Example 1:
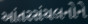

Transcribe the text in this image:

આંતરસંચલનોને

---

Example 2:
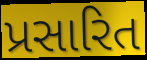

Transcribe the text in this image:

પ્રસારિત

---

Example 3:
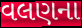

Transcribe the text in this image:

વલણના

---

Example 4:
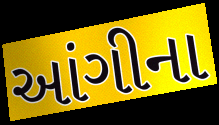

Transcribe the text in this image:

આંગીના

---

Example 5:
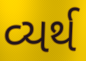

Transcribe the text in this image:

વ્યર્થ